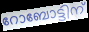
റോബോട്ടിന്